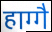
हाग्गै